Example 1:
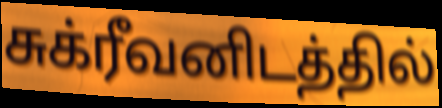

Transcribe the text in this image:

சுக்ரீவனிடத்தில்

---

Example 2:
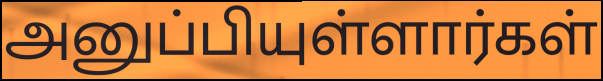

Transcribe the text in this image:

அனுப்பியுள்ளார்கள்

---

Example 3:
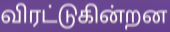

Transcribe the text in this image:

விரட்டுகின்றன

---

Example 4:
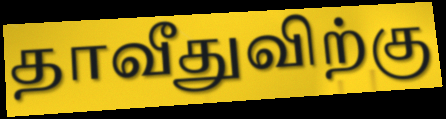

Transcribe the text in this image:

தாவீதுவிற்கு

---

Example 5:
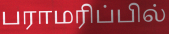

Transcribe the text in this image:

பராமரிப்பில்